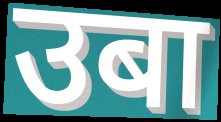
उबा